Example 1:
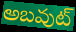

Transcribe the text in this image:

అబవుట్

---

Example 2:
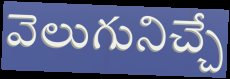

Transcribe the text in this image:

వెలుగునిచ్చే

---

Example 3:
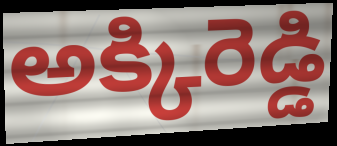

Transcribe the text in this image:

అక్కిరెడ్డి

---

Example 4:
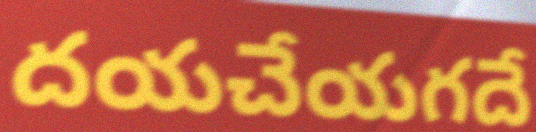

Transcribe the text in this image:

దయచేయగదే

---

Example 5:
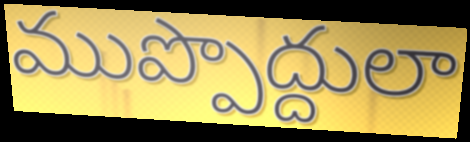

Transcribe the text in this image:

ముప్పొద్దులా